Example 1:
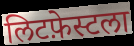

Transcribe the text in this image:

लिटफ़ेस्टला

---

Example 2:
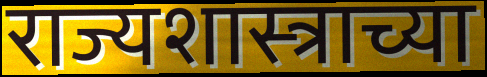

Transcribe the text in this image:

राज्यशास्त्राच्या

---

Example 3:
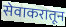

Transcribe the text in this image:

सेवाकरातून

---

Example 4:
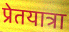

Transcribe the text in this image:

प्रेतयात्रा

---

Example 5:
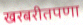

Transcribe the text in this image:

खरबरीतपणा